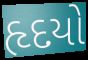
હૃદયો